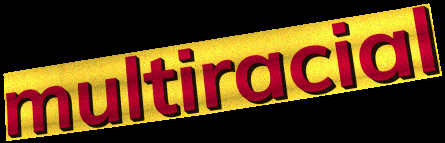
multiracial